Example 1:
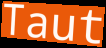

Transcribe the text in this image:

Taut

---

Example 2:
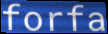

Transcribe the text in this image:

forfa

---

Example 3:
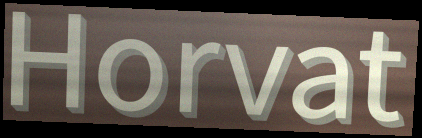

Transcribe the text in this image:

Horvat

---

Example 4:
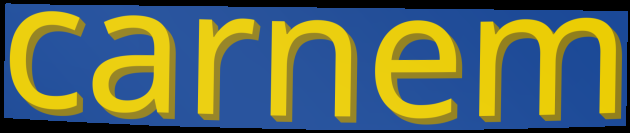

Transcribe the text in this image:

carnem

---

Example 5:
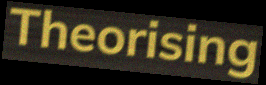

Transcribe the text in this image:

Theorising